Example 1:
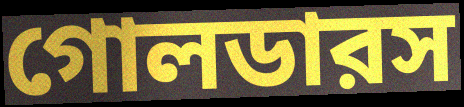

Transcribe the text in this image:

গোলডারস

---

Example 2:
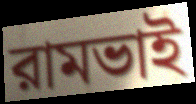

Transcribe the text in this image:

রামভাই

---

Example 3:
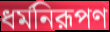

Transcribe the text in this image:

ধর্মনিরূপণ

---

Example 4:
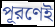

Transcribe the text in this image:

পূরণেই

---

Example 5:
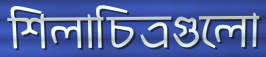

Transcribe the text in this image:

শিলাচিত্রগুলো